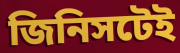
জিনিসটেই